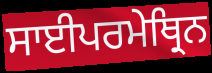
ਸਾਈਪਰਮੇਥ੍ਰਿਨ